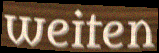
weiten